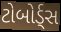
ટોબોર્ડ્સ